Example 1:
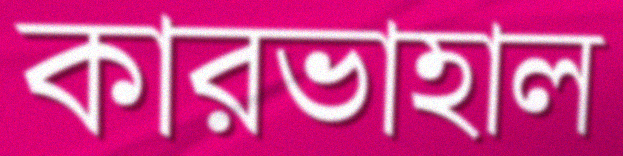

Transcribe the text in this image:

কারভাহাল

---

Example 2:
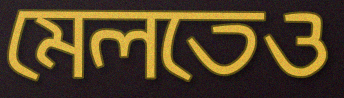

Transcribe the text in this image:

মেলতেও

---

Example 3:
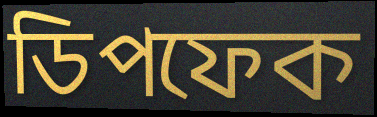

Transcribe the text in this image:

ডিপফেক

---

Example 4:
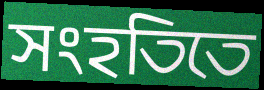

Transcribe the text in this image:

সংহতিতে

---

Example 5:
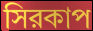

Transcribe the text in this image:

সিরকাপ